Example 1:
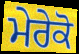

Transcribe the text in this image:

ਮੇਰੇਕੋ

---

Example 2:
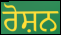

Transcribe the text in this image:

ਰੋਸ਼ਨ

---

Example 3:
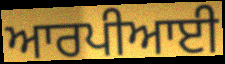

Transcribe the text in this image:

ਆਰਪੀਆਈ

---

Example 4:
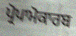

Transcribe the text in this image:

ਪ੍ਰੋਪਾਮੋਕਾਰਬ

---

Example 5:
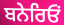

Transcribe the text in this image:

ਬਨੇਰਿਓਂ